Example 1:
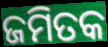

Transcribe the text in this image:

ଜମିତକ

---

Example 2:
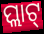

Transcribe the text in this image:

ପ୍ଲାଟ୍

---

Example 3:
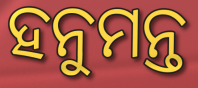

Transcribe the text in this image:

ହନୁମନ୍ତ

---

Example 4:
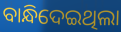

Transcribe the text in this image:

ବାନ୍ଧିଦେଇଥିଲା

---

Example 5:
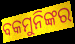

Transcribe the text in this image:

ବକମୁନିଙ୍କର